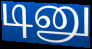
டினு